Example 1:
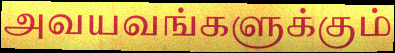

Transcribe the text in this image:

அவயவங்களுக்கும்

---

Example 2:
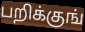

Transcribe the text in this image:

பறிக்குங்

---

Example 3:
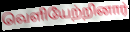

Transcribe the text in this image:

வெளியேற்றினார்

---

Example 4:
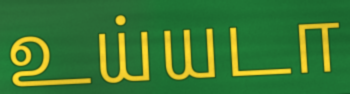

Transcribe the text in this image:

உய்யடா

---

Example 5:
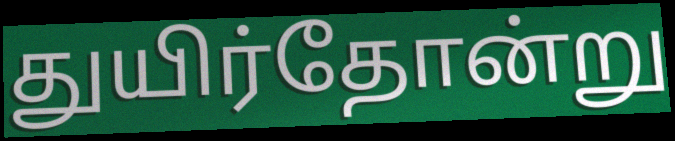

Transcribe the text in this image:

துயிர்தோன்று